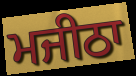
ਮਜੀਠਾ